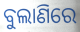
ବୁଲାଣିରେ